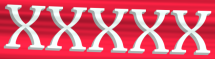
XXXXX